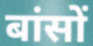
बांसों